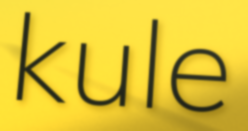
kule